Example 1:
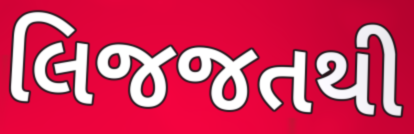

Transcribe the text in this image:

લિજજતથી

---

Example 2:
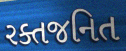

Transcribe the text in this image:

રક્તજનિત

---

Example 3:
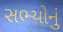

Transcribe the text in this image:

સભ્યોનું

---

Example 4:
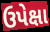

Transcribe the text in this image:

ઉપેક્ષા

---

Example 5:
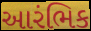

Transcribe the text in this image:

આરંભિક